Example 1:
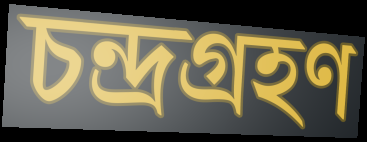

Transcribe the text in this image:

চন্দ্রগ্রহণ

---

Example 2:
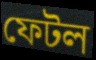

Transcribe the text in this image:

ফেটল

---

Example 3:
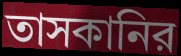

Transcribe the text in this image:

তাসকানির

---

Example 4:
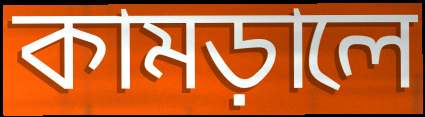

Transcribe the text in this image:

কামড়ালে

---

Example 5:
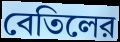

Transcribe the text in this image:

বেতিলের